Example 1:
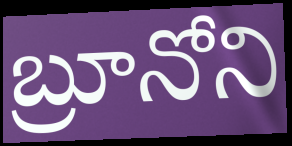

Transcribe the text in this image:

బ్రూనోని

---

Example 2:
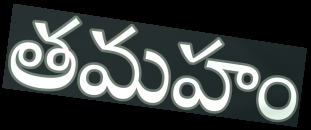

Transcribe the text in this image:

తమహం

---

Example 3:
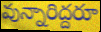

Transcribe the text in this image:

వున్నారిద్దరూ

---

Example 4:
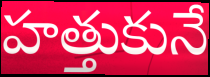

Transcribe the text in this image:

హత్తుకునే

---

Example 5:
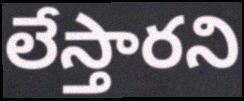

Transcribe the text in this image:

లేస్తారని